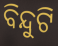
ବିନ୍ଦୁଟି